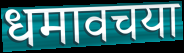
धमावचया